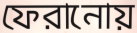
ফেরানোয়